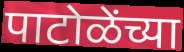
पाटोळेंच्या